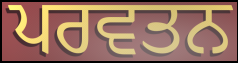
ਪਰਵਤਨ